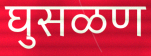
घुसळण